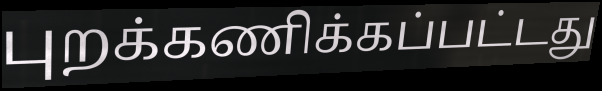
புறக்கணிக்கப்பட்டது